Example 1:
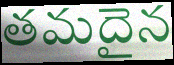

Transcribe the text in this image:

తమదైన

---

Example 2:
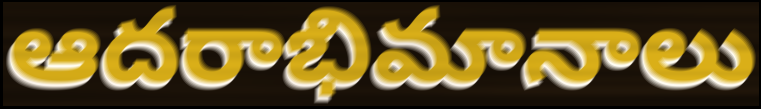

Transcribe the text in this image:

ఆదరాభిమానాలు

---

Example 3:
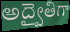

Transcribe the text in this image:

అద్వైతిగా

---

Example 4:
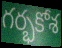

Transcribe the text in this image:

గర్భకోశ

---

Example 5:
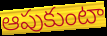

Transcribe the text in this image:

ఆపుకుంటా